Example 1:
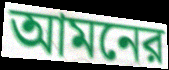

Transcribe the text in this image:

আমনের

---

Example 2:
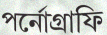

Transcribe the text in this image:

পর্নোগ্রাফি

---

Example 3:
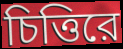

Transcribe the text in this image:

চিত্তিরে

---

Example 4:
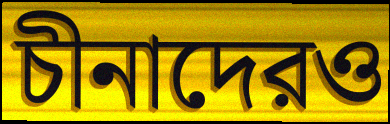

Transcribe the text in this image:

চীনাদেরও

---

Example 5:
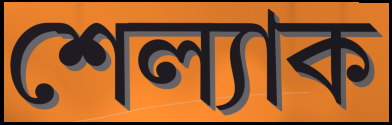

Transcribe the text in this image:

শেল্যাক